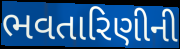
ભવતારિણીની